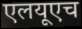
एलयूएच